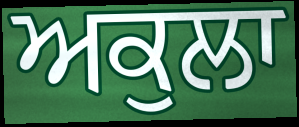
ਅਕੁਲਾ